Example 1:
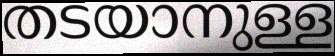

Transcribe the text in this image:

തടയാനുള്ള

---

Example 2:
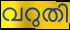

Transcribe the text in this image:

വറുതി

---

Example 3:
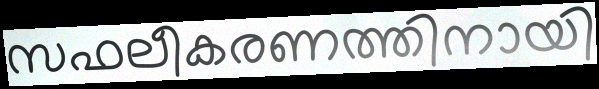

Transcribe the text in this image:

സഫലീകരണത്തിനായി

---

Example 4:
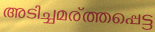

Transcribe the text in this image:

അടിച്ചമര്ത്തപ്പെട്ട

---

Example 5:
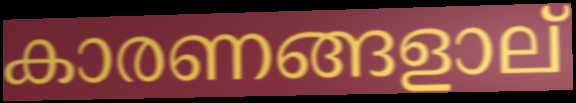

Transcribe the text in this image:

കാരണങ്ങളാല്